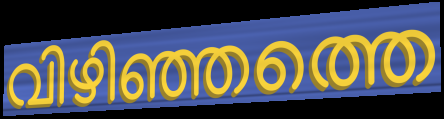
വിഴിഞ്ഞത്തെ